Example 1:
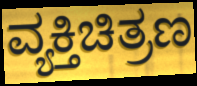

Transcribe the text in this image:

ವ್ಯಕ್ತಿಚಿತ್ರಣ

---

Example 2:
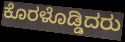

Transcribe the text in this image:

ಕೊರಳೊಡ್ಡಿದರು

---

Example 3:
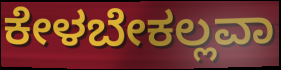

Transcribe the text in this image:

ಕೇಳಬೇಕಲ್ಲವಾ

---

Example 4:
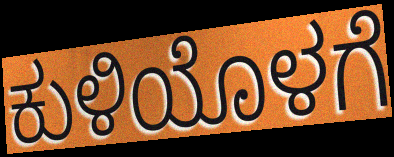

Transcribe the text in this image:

ಕುಳಿಯೊಳಗೆ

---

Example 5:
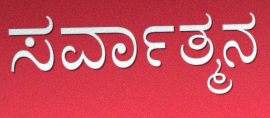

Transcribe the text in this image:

ಸರ್ವಾತ್ಮನ